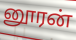
னூரன்